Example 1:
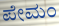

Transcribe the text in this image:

ಪೇಮಂ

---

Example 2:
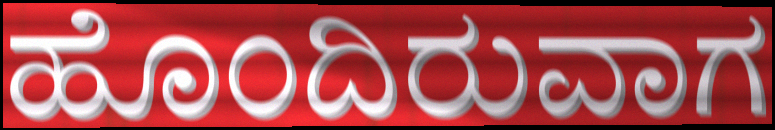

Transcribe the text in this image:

ಹೊಂದಿರುವಾಗ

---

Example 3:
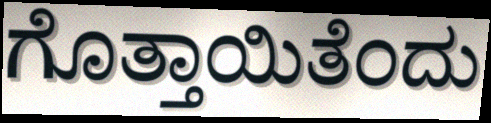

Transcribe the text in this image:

ಗೊತ್ತಾಯಿತೆಂದು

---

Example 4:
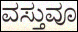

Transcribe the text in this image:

ವಸ್ತುವೂ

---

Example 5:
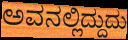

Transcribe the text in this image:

ಅವನಲ್ಲಿದ್ದುದು